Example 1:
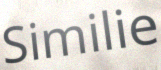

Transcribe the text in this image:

Similie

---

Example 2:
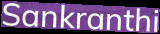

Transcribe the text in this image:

Sankranthi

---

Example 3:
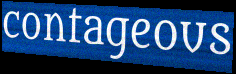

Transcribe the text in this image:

contageous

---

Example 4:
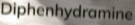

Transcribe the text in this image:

Diphenhydramine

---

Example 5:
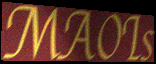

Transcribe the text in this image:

MAOIs